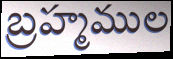
బ్రహ్మముల